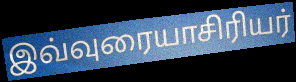
இவ்வுரையாசிரியர்